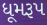
ધૂમરૂપ